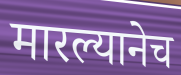
मारल्यानेच